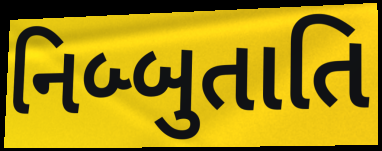
નિબ્બુતાતિ